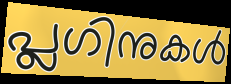
പ്ലഗിനുകൾ